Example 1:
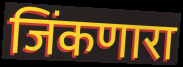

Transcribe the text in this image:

जिंकणारा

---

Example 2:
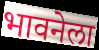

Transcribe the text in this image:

भावनेला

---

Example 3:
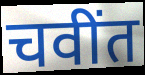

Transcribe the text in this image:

चवींत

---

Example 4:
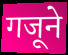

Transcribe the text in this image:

गजूने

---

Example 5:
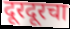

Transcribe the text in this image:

दूरदूरचा